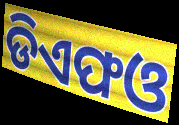
ଡିଏଫଓ